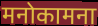
मनोकामना